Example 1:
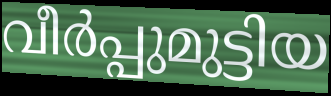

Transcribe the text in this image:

വീർപ്പുമുട്ടിയ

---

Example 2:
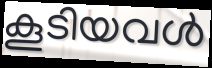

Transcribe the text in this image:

കൂടിയവൾ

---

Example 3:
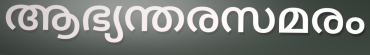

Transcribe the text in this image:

ആഭ്യന്തരസമരം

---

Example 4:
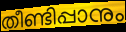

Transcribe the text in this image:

തീണ്ടിപ്പാനും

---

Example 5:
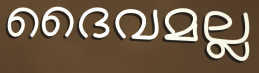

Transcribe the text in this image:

ദൈവമല്ല